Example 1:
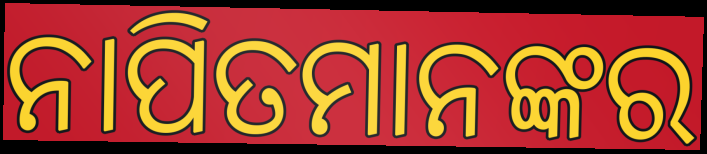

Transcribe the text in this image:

ନାପିତମାନଙ୍କର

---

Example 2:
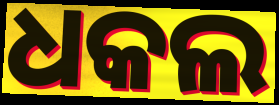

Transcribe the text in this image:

ଧକଲ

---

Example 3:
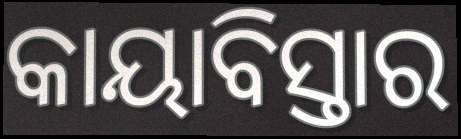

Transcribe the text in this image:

କାୟାବିସ୍ତାର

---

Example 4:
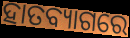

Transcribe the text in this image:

ହାତବ୍ୟାଗରେ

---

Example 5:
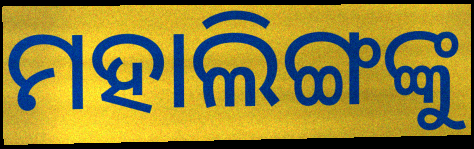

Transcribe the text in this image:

ମହାଲିଙ୍ଗଙ୍କୁ